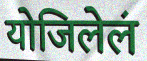
योजिलेलं